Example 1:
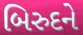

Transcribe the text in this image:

બિરુદને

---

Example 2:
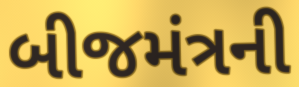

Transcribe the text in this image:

બીજમંત્રની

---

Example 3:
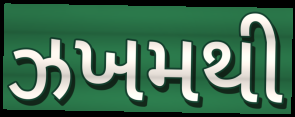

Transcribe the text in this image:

ઝખમથી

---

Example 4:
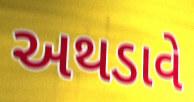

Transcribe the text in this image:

અથડાવે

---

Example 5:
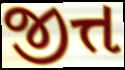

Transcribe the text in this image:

જીત્ત